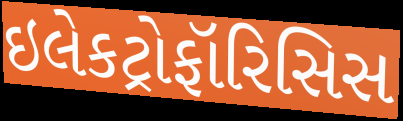
ઇલેકટ્રોફૉરિસિસ